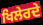
ਖਿਲੇਰਦੇ